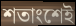
শতাংশেই